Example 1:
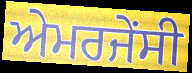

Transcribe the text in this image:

ਅੇਮਰਜੇਂਸੀ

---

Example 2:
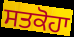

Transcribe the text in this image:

ਸਤਕੋਹਾ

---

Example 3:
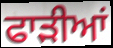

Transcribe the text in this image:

ਫਾੜੀਆਂ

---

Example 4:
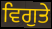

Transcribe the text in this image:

ਵਿਗੁਤੇ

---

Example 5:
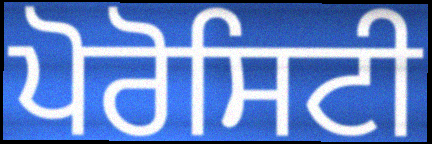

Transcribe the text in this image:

ਪੋਰੋਸਿਟੀ